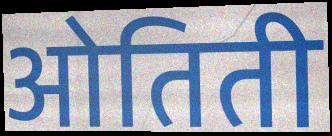
ओतिती